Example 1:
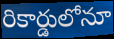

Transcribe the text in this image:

రికార్డులోనూ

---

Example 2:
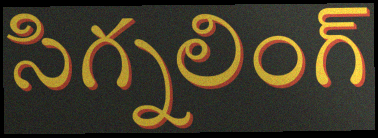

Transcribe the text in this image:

సిగ్నలింగ్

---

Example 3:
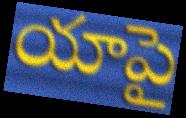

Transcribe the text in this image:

యాపై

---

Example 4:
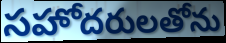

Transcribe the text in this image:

సహోదరులతోను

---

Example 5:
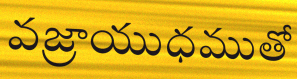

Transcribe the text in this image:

వజ్రాయుధముతో